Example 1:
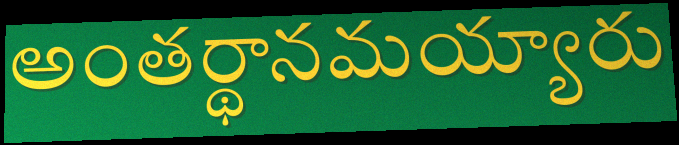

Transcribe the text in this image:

అంతర్థానమయ్యారు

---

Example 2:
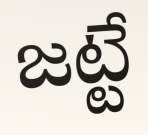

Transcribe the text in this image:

జట్టే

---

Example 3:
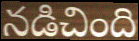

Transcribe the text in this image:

నడిచింది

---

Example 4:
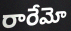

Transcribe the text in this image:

రారేమో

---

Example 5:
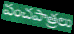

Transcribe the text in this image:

పంచపాత్రలు